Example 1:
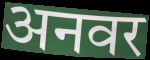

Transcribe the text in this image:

अनवर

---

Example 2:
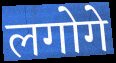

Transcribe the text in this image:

लगोगे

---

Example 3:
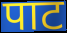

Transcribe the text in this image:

पाट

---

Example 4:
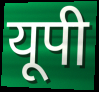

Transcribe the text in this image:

यूपी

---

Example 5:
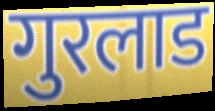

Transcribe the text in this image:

गुरलाड